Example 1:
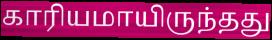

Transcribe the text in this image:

காரியமாயிருந்தது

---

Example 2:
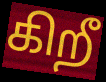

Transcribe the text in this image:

கிறீ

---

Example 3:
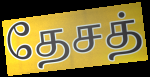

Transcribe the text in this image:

தேசத்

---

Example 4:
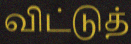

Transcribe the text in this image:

விட்டுத்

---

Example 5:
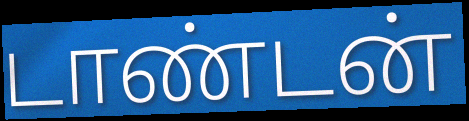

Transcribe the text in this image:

டாண்டன்